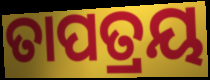
ତାପତ୍ରୟ